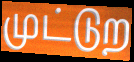
முட்டுற